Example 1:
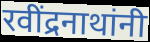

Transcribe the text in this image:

रवींद्रनाथांनी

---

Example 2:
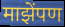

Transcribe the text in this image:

माझेंपण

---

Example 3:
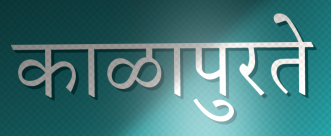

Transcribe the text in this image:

काळापुरते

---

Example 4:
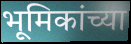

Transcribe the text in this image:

भूमिकांच्या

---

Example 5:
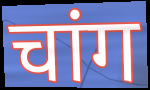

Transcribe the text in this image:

चांग